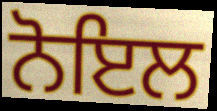
ਨੋਇਲ